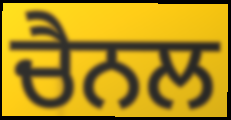
ਚੈਨਲ